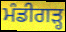
ਮੰਡੀਗੜ੍ਹ